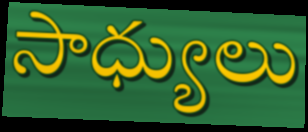
సాధ్యులు